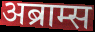
अब्राम्स